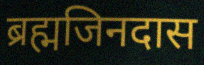
ब्रह्मजिनदास